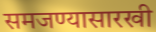
समजण्यासारखी